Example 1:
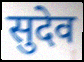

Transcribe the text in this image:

सुदेव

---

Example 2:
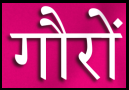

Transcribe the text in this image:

गौरों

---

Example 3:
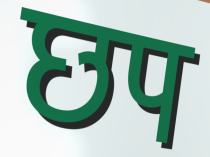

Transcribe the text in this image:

छप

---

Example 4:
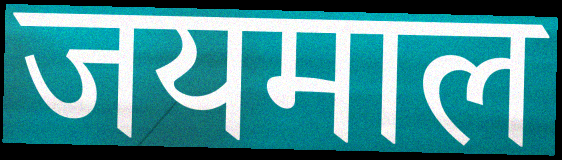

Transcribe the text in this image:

जयमाल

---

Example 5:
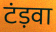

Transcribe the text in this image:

टंड़वा